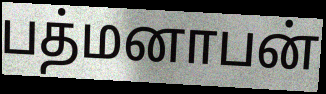
பத்மனாபன்